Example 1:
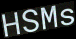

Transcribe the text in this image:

HSMs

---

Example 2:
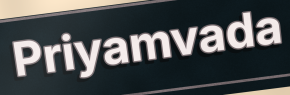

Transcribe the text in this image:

Priyamvada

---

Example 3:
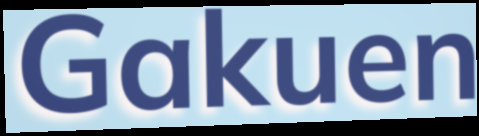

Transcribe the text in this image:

Gakuen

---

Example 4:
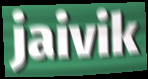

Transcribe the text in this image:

jaivik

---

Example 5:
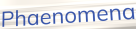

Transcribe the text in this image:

Phaenomena